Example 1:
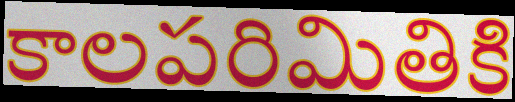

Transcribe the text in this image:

కాలపరిమితికి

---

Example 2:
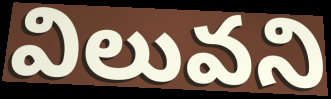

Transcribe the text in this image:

విలువని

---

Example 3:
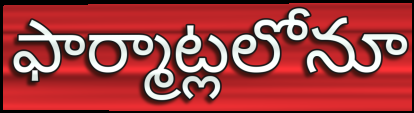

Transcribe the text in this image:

ఫార్మాట్లలోనూ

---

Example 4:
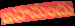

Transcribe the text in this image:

ఇహమందు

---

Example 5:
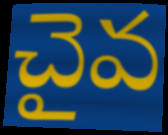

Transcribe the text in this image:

చైవ